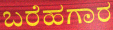
ಬರೆಹಗಾರ